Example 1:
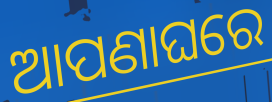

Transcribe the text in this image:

ଆପଣାଘରେ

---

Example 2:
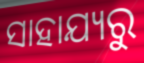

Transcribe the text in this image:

ସାହାଯ୍ୟରୁ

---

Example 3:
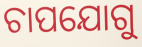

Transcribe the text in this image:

ଚାପଯୋଗୁ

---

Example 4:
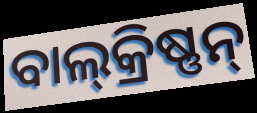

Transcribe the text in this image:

ବାଲ୍‍କ୍ରିଷ୍ଣନ୍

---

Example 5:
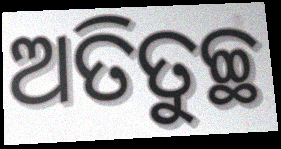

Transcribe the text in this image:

ଅତିତୁଚ୍ଛ